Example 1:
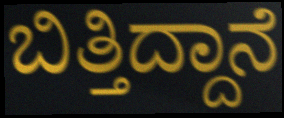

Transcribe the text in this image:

ಬಿತ್ತಿದ್ದಾನೆ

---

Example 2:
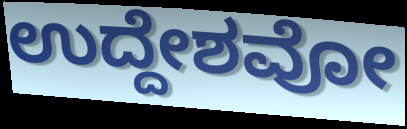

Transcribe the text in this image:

ಉದ್ದೇಶವೋ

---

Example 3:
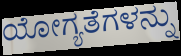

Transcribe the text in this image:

ಯೋಗ್ಯತೆಗಳನ್ನು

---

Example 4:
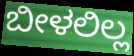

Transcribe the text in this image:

ಬೀಳಲಿಲ್ಲ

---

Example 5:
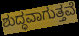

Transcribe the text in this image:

ಶುದ್ಧವಾಗುತ್ತವೆ